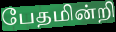
பேதமின்றி